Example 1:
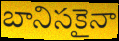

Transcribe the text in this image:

బానిసకైనా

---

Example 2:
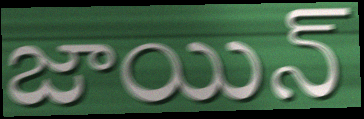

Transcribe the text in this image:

జాయిన్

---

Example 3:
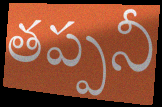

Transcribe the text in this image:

తప్పనీ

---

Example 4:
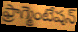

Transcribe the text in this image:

ఫ్రాగ్మెంటేషన్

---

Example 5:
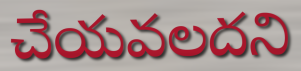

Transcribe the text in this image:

చేయవలదని